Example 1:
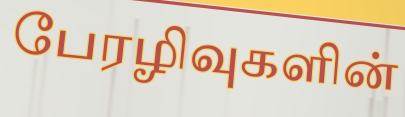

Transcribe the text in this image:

பேரழிவுகளின்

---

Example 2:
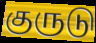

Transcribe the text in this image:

குருடு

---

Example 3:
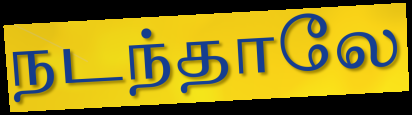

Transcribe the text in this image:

நடந்தாலே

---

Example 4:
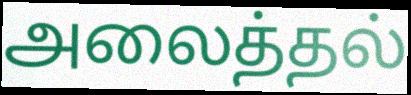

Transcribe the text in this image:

அலைத்தல்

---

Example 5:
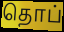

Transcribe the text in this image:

தொப்